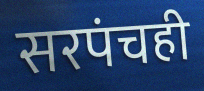
सरपंचही